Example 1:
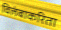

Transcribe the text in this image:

विलंबाकरिता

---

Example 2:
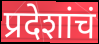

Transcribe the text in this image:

प्रदेशांचं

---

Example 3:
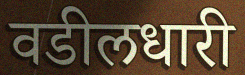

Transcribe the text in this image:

वडीलधारी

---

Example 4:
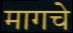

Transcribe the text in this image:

मागचे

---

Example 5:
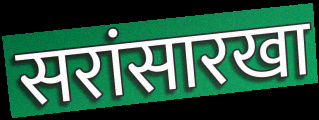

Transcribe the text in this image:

सरांसारखा